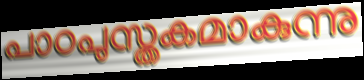
പാഠപുസ്തകമാകുന്നു